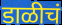
डाळीचं